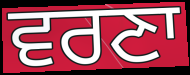
ਵਰਣਾ